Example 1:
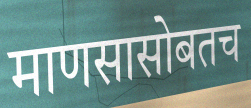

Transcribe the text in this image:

माणसासोबतच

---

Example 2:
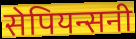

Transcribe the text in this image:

सेपियन्सनी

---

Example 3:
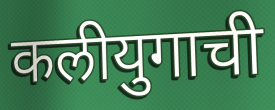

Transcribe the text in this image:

कलीयुगाची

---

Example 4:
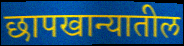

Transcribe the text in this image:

छापखान्यातील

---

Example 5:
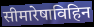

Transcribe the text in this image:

सीमारेषाविहिन